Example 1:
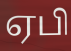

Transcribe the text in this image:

ஏபி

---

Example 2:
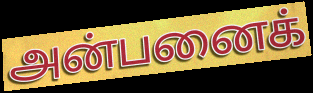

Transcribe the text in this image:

அன்பனைக்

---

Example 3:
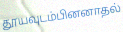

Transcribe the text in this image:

தூயவுடம்பினனாதல்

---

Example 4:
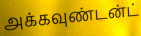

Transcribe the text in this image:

அக்கவுண்டன்ட்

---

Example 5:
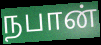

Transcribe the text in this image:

நபான்